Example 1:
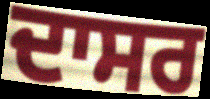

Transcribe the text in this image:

ਦਾਸਰ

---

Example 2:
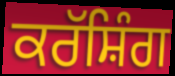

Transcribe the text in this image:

ਕਰੱਸ਼ਿੰਗ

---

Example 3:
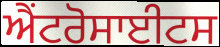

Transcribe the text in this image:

ਐਂਟਰੋਸਾਈਟਸ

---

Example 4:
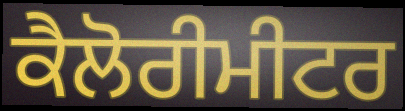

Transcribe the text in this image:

ਕੈਲੋਰੀਮੀਟਰ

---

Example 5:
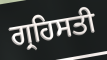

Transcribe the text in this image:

ਗ੍ਰਹਿਸਤੀ